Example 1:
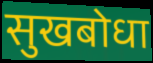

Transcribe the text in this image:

सुखबोधा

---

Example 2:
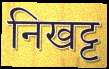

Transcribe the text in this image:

निखट्ट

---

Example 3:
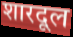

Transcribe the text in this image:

शारदूल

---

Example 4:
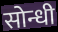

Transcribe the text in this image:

सोन्धी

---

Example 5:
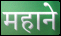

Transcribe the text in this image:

महाने